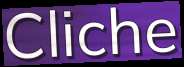
Cliche